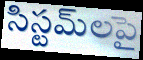
సిస్టమ్‌లపై